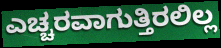
ಎಚ್ಚರವಾಗುತ್ತಿರಲಿಲ್ಲ